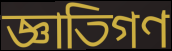
জ্ঞাতিগণ